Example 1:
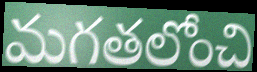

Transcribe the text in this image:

మగతలోంచి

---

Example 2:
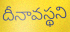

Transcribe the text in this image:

దీనావస్థని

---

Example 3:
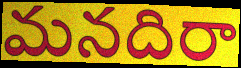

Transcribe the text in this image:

మనదిరా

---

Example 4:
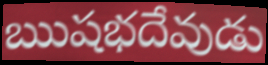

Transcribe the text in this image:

ఋషభదేవుడు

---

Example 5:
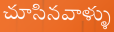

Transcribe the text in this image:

చూసినవాళ్ళు